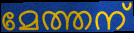
മേത്തന്